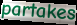
partakes